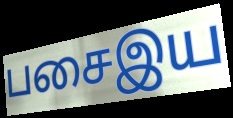
பசைஇய